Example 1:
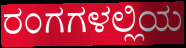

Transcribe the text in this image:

ರಂಗಗಳಲ್ಲಿಯ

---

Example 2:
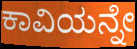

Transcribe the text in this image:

ಕಾವಿಯನ್ನೇ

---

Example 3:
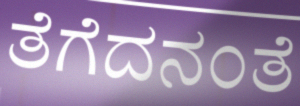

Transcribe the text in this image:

ತೆಗೆದನಂತೆ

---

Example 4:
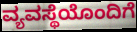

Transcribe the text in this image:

ವ್ಯವಸ್ಥೆಯೊಂದಿಗೆ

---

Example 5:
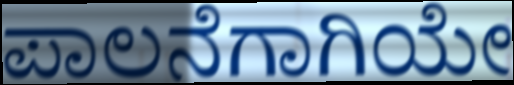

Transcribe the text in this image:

ಪಾಲನೆಗಾಗಿಯೇ